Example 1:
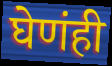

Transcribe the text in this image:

घेणंही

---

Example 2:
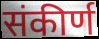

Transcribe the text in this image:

संकीर्ण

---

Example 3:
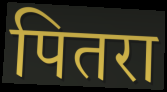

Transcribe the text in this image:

पितरा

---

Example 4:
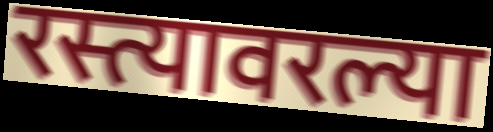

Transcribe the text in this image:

रस्त्यावरल्या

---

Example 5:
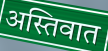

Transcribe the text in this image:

अस्तिवात